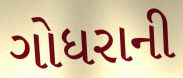
ગોધરાની